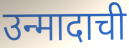
उन्मादाची